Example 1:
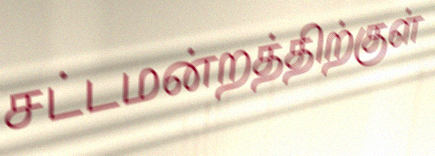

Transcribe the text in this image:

சட்டமன்றத்திற்குள்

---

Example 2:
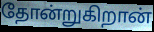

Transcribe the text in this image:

தோன்றுகிறான்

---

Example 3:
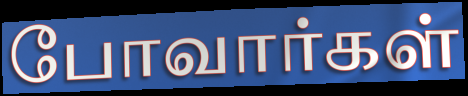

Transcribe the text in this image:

போவார்கள்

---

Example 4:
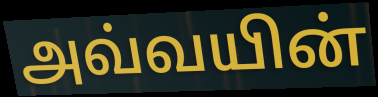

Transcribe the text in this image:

அவ்வயின்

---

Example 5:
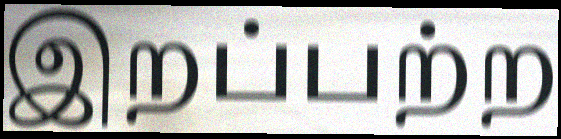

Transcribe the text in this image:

இறப்பற்ற